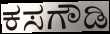
ಕಸಗೌಡಿ